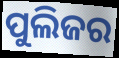
ପୁଲିଜର